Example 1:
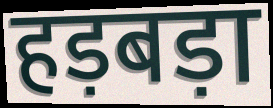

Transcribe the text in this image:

हड़बड़ा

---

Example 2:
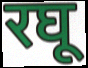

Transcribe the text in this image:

रघू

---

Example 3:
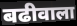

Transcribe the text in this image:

बढीवाला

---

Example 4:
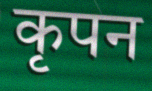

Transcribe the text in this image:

कृपन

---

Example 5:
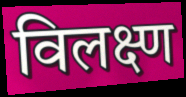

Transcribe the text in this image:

विलक्ष्ण